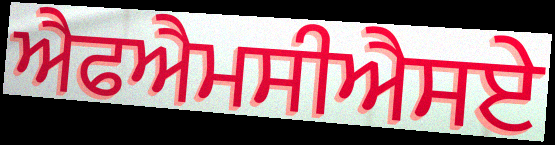
ਐਫਐਮਸੀਐਸਏ